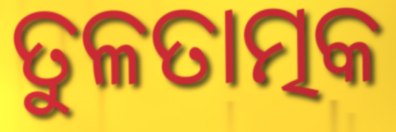
ତୁଳତାତ୍ମକ